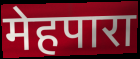
मेहपारा